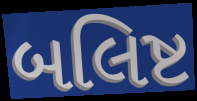
બલિષ્ટ